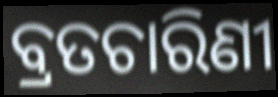
ବ୍ରତଚାରିଣୀ